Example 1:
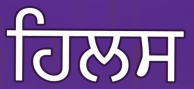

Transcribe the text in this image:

ਹਿਲਸ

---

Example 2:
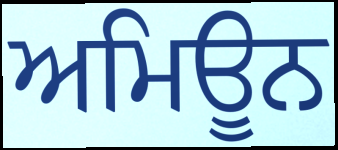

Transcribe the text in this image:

ਅਮਿਊਨ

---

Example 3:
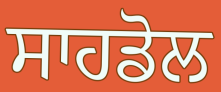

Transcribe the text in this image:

ਸਾਹਡੋਲ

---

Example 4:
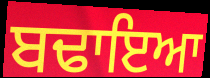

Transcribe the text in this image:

ਬਢਾਇਆ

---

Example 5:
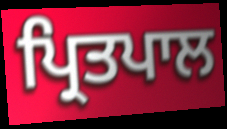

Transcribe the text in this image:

ਪ੍ਰਿਤਪਾਲ